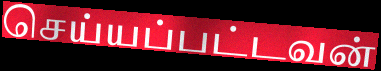
செய்யப்பட்டவன்